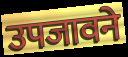
उपजावने